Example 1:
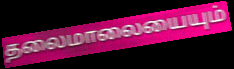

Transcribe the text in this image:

தலைமாலையையும்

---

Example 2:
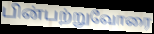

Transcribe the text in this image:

பின்பற்றுவோரை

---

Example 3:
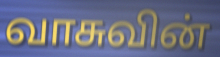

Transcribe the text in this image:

வாசுவின்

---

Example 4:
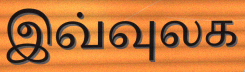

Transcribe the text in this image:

இவ்வுலக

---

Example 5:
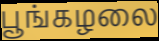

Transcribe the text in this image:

பூங்கழலை